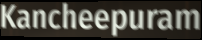
Kancheepuram